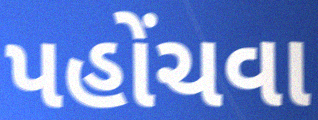
પહોંચવા